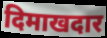
दिमाखदार